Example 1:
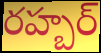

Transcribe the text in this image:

రహ్బర్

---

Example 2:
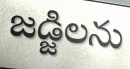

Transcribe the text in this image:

జడ్జిలను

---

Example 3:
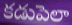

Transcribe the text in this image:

కడుపెలా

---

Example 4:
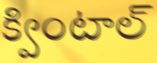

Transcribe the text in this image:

క్వింటాల్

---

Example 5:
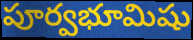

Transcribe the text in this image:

పూర్వభూమిషు